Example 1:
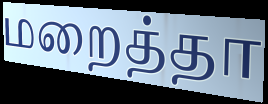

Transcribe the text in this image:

மறைத்தா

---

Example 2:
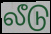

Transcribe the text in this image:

லீடு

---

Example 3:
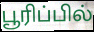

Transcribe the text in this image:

பூரிப்பில்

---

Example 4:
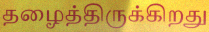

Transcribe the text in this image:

தழைத்திருக்கிறது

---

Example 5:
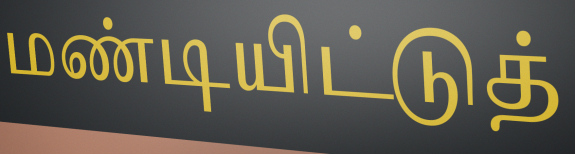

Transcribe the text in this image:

மண்டியிட்டுத்